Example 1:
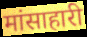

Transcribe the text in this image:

मांसाहारी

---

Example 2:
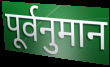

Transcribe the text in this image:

पूर्वनुमान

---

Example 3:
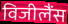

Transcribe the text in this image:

विजीलैंस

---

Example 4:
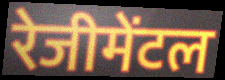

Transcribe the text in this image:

रेजीमेंटल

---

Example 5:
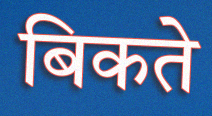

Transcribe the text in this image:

बिकते